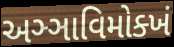
અઞ્ઞાવિમોક્ખં